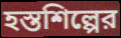
হস্তশিল্পের